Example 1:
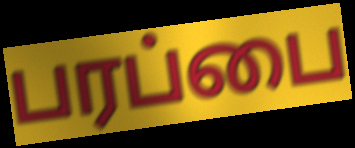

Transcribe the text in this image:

பரப்பை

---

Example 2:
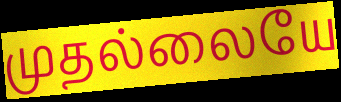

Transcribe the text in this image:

முதல்லையே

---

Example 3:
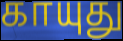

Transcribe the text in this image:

காயுது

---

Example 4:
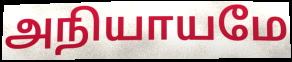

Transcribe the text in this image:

அநியாயமே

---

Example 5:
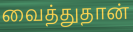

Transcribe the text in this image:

வைத்துதான்